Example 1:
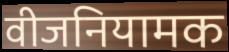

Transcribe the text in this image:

वीजनियामक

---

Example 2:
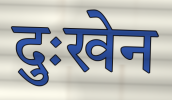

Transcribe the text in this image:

दुःखेन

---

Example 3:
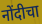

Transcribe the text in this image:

नोंदीचा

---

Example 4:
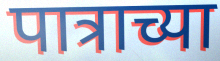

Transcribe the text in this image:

पात्राच्या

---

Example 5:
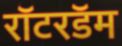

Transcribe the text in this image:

रॉटरडॅम